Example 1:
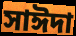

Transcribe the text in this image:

সাঈদা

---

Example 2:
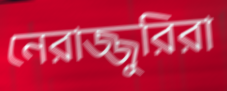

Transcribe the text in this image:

নেরাজ্জুরিরা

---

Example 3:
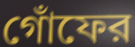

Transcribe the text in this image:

গোঁফের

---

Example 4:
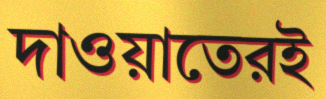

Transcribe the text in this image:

দাওয়াতেরই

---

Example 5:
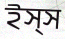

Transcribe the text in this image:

ইস্‌স